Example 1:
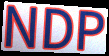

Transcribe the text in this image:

NDP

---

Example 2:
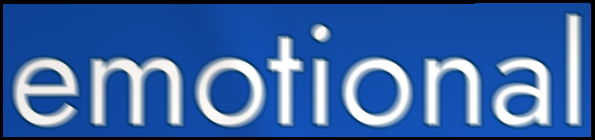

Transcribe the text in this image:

emotional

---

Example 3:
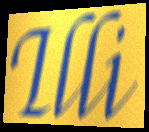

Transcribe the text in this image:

Illi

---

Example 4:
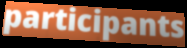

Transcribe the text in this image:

participants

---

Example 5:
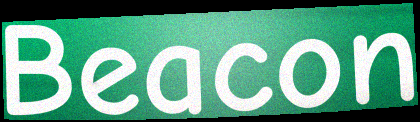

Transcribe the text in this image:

Beacon